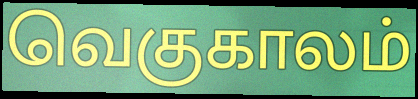
வெகுகாலம்